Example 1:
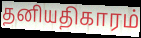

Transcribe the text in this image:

தனியதிகாரம்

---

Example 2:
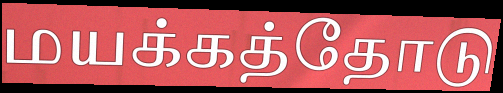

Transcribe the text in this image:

மயக்கத்தோடு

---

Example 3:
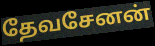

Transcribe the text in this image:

தேவசேனன்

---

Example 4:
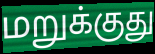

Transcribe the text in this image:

மறுக்குது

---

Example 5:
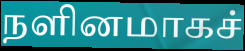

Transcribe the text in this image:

நளினமாகச்